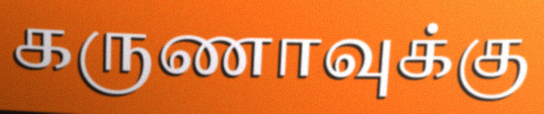
கருணாவுக்கு